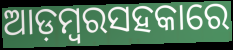
ଆଡ଼ମ୍ବରସହକାରେ